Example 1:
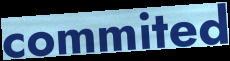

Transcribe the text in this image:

commited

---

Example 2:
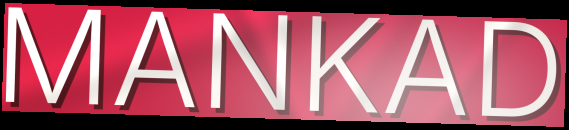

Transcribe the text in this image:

MANKAD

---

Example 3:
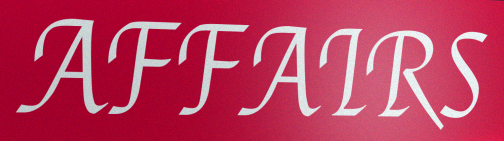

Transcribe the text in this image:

AFFAIRS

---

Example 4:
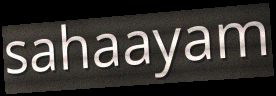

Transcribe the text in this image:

sahaayam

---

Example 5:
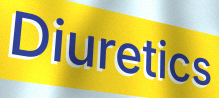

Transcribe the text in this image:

Diuretics